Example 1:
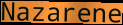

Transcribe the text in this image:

Nazarene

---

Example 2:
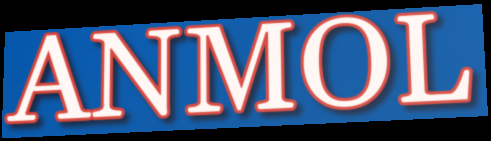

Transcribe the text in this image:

ANMOL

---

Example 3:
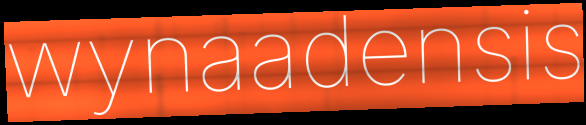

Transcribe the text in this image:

wynaadensis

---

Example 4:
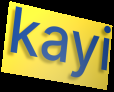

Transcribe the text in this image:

kayi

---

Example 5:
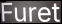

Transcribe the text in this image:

Furet